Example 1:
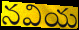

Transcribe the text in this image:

నవియ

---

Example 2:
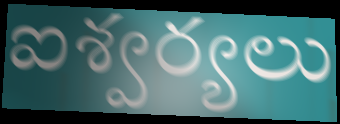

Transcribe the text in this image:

ఐశ్వర్యలు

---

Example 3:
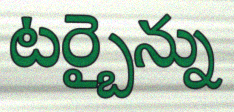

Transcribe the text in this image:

టర్బైన్ను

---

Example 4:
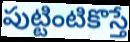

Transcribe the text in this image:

పుట్టింటికొస్తే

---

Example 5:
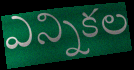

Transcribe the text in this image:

ఎన్నికల